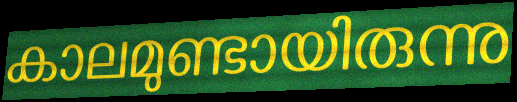
കാലമുണ്ടായിരുന്നു